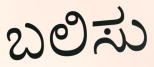
ಬಲಿಸು